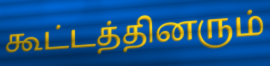
கூட்டத்தினரும்